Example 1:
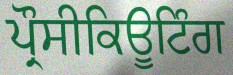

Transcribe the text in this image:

ਪ੍ਰੌਸੀਕਿਊਟਿੰਗ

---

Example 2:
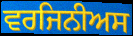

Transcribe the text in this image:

ਵਰਜਿਨੀਅਸ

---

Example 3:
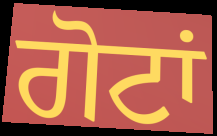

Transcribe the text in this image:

ਗੋਟਾਂ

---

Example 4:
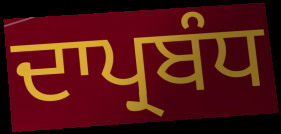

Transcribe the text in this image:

ਦਾਪ੍ਰਬੰਧ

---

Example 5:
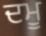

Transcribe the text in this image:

ਦਮੂ